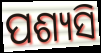
ପଶ୍ୟସି